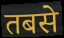
तबसे